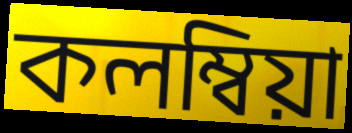
কলম্বিয়া